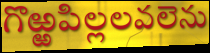
గొఱ్ఱపిల్లలవలెను